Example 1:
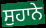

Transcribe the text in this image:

ਸੁਹਾਨੇ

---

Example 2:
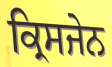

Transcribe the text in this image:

ਕ੍ਰਿਸਜੇਨ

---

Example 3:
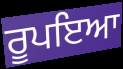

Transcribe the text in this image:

ਰੂਪਇਆ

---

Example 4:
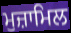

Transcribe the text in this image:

ਮੁਜ਼ਾਮਿਲ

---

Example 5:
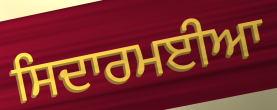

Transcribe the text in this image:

ਸਿਦਾਰਮਈਆ